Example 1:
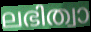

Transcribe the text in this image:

ലഭിത്വാ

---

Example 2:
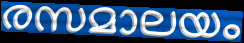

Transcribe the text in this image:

രസമാലയം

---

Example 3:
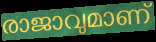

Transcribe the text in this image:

രാജാവുമാണ്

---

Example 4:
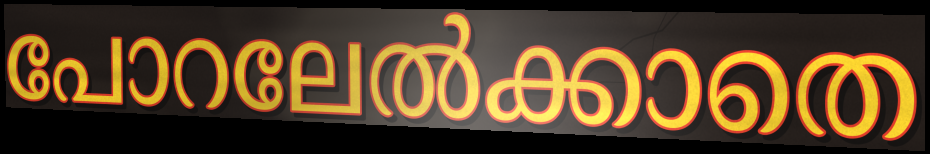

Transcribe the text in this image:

പോറലേൽക്കാതെ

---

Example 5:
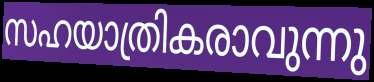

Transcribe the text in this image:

സഹയാത്രികരാവുന്നു